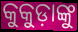
କୁକୁଡ଼ାଙ୍କୁ